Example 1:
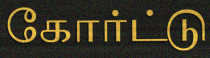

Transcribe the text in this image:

கோர்ட்டு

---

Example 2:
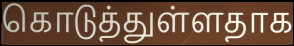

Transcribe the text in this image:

கொடுத்துள்ளதாக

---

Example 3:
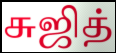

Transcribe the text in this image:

சுஜித்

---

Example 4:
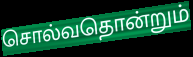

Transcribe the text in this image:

சொல்வதொன்றும்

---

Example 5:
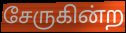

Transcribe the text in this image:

சேருகின்ற